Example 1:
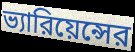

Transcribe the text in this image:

ভ্যারিয়েন্সের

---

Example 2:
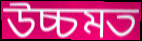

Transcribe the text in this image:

উচ্চমত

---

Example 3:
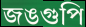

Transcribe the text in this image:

জঙগুপি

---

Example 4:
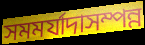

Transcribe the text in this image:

সমমর্যাদাসম্পন্ন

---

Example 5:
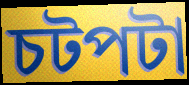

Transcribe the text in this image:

চটপটা